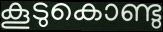
കൂടുകൊണ്ടു